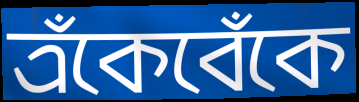
ত্রঁকেবেঁকে